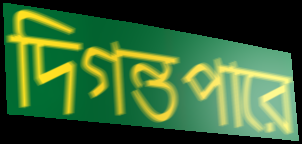
দিগন্তপারে